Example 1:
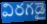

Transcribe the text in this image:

విరగడై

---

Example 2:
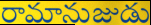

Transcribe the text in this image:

రామానుజుడు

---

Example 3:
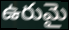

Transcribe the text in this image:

ఉరుమై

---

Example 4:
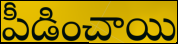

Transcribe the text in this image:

పీడించాయి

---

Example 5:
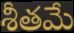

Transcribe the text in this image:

శీతమే